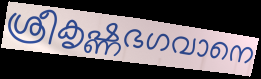
ശ്രീകൃഷ്ണഭഗവാനെ